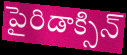
పైరిడాక్సిన్